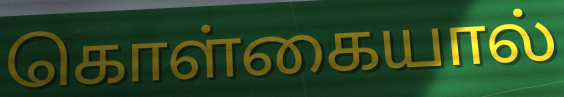
கொள்கையால்